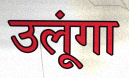
उलूंगा